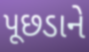
પૂછડાને